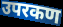
उपरकण